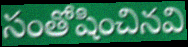
సంతోషించినవి